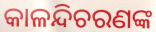
କାଳନ୍ଦିଚରଣଙ୍କ